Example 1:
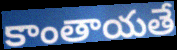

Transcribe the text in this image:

కాంతాయతే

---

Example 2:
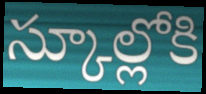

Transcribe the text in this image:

స్కూల్లోకి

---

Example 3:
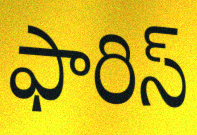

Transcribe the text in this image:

ఫారిస్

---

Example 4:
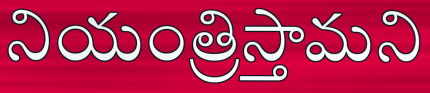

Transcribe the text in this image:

నియంత్రిస్తామని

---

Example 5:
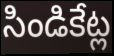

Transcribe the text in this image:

సిండికేట్ల